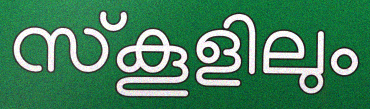
സ്കൂളിലും